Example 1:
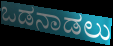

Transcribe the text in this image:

ಒಡನಾಡಲು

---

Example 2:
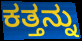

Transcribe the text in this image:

ಕತ್ತನ್ನು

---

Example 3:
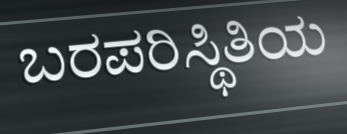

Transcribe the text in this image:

ಬರಪರಿಸ್ಥಿತಿಯ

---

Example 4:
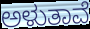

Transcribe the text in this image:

ಅಳುತಾವೆ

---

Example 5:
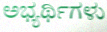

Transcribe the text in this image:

ಅಭ್ಯರ್ಥಿಗಳು